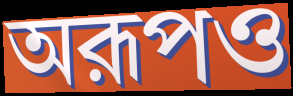
অরূপও